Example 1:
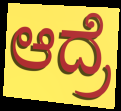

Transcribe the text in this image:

ಆದ್ರೆ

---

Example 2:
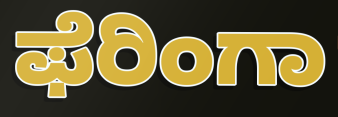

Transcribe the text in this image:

ಫೆರಿಂಗಾ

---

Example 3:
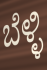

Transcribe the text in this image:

ಬೆಳ್ಳಿ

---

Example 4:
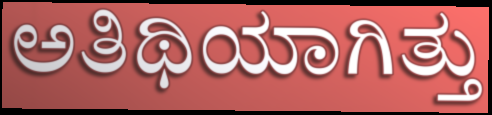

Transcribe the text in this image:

ಅತಿಥಿಯಾಗಿತ್ತು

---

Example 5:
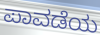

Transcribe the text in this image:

ಪಾವಡೆಯ